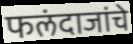
फलंदाजांचे